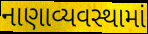
નાણાવ્યવસ્થામાં